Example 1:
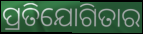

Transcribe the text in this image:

ପ୍ରତିଯୋଗିତାର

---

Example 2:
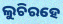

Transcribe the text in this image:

ଲୁଚିରହେ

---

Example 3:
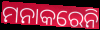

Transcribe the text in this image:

ମନାକରେନି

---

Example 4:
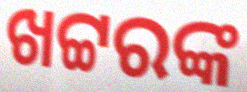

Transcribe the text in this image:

ଖଟ୍ଟରଙ୍କ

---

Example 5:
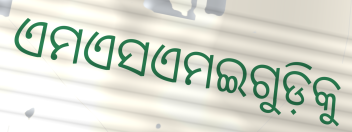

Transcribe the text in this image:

ଏମଏସଏମଇଗୁଡ଼ିକୁ